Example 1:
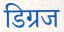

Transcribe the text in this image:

डिग्रज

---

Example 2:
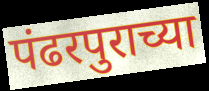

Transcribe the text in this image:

पंढरपुराच्या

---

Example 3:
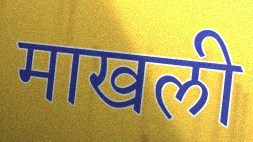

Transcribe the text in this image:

माखली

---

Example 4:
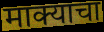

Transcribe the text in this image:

माक्याचा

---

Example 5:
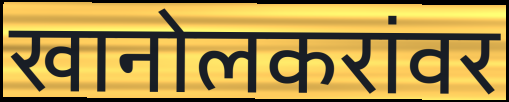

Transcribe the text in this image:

खानोलकरांवर